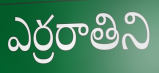
ఎర్రరాతిని